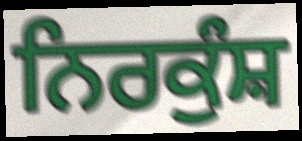
ਨਿਰਕੁੰਸ਼